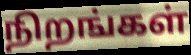
நிறங்கள்